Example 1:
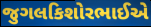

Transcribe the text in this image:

જુગલકિશોરભાઈએ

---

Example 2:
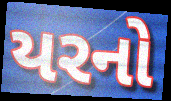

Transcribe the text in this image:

યરનો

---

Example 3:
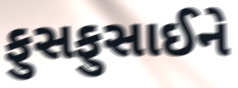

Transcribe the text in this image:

ફુસફુસાઈને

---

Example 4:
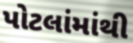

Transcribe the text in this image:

પોટલાંમાંથી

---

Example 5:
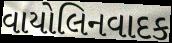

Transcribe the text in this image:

વાયોલિનવાદક